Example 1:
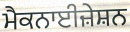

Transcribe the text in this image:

ਮੈਕਨਾਈਜ਼ੇਸ਼ਨ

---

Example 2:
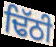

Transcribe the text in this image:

ਢਿੱਠੀ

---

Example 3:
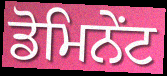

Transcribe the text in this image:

ਡੋਮਿਨੇਂਟ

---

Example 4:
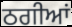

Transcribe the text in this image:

ਠਗੀਆਂ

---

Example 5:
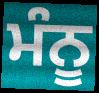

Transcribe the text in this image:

ਮੰਨੂ